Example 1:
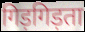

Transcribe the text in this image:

गिड़गिड़ता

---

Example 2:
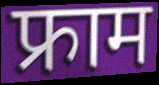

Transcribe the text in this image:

फ्राम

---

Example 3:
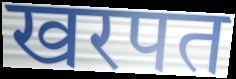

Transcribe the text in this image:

खरपत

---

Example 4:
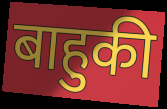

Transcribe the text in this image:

बाहुकी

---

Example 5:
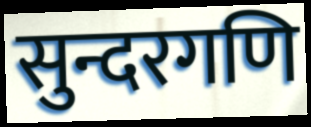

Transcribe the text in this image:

सुन्दरगणि